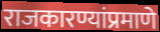
राजकारण्यांप्रमाणे